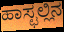
ಹಾಸ್ಟಲ್ಲಿನ